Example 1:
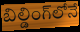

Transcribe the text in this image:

బిల్డింగ్‌లోనే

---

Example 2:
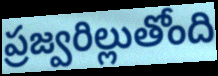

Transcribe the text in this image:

ప్రజ్వరిల్లుతోంది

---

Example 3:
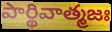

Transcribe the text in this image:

పార్థివాత్మజః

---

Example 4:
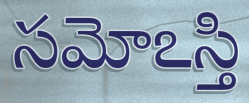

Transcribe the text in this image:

సమోఽస్తి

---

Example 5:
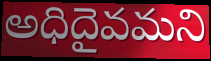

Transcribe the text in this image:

అధిదైవమని